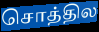
சொத்தில